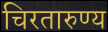
चिरतारुण्य